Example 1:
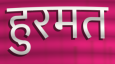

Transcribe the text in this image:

हुरमत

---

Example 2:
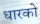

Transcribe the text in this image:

धारको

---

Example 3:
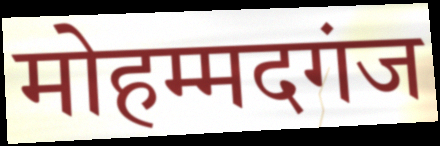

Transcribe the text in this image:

मोहम्मदगंज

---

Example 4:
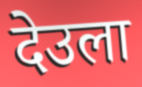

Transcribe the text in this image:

देउला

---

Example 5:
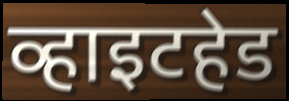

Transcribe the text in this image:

व्हाइटहेड